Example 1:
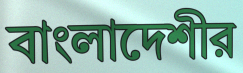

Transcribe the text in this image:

বাংলাদেশীর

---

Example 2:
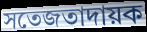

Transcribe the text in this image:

সতেজতাদায়ক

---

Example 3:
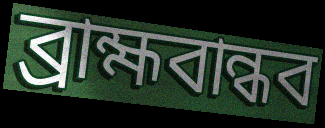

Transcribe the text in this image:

ব্রাহ্মবান্ধব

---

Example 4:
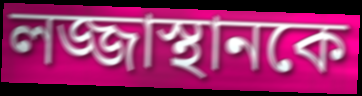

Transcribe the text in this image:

লজ্জাস্থানকে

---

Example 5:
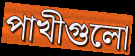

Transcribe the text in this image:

পাখীগুলো